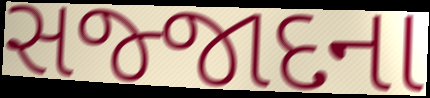
સજ્જાદના